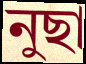
নুছা